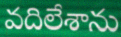
వదిలేశాను